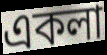
একলা